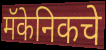
मॅकेनिकचे